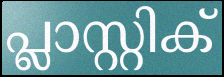
പ്ലാസ്റ്റിക്